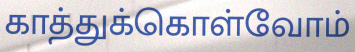
காத்துக்கொள்வோம்